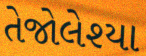
તેજોલેશ્યા